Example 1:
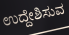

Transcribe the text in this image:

ಉದ್ದೇಶಿಸುವ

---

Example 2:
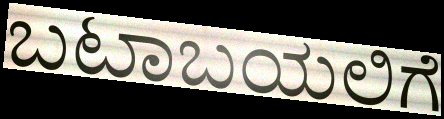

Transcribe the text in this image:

ಬಟಾಬಯಲಿಗೆ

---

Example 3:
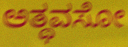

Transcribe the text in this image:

ಅತ್ಥವಸೋ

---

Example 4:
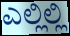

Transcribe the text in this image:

ಎಲ್ಲಿಲ್ಲಿ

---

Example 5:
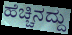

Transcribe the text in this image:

ಹೆಚ್ಚಿನದ್ದು